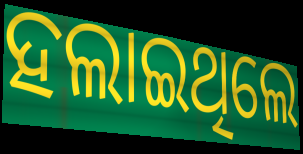
ହଲାଇଥିଲେ